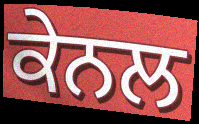
ਕੇਨਲ